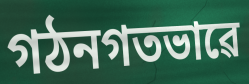
গঠনগতভাৱে